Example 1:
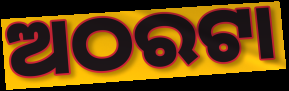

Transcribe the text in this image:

ଅଠରଟା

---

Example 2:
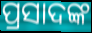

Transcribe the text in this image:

ପ୍ରସାଦଙ୍କ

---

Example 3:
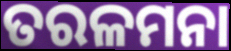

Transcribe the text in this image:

ତରଳମନା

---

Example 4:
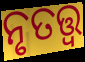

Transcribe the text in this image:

ନୃତତ୍ତ୍ୱ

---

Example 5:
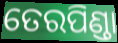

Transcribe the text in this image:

ତେରପିଣ୍ଡା